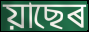
য়াছেৰ